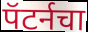
पॅटर्नचा